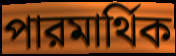
পারমার্থিক